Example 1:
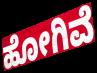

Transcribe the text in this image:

ಹೋಗಿವೆ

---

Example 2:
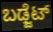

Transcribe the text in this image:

ಬಡ್ಜೆಟ್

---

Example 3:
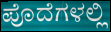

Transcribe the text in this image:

ಪೊದೆಗಳಲ್ಲಿ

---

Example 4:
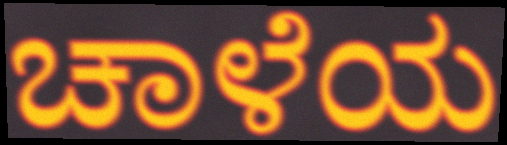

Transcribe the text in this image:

ಚಾಳೆಯ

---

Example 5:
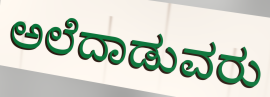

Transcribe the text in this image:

ಅಲೆದಾಡುವರು